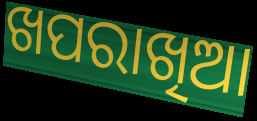
ଖପରାଖିଆ